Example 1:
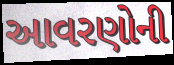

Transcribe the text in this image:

આવરણોની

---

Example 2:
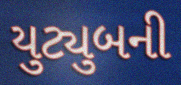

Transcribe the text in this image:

યુટ્યુબની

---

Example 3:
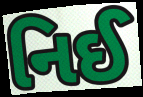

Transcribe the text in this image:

નિઈ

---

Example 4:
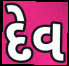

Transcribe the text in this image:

દેવ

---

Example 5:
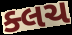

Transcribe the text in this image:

ક્લચ